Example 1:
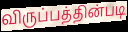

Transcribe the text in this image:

விருப்பத்தின்படி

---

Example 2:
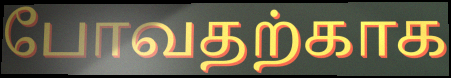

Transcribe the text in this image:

போவதற்காக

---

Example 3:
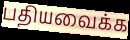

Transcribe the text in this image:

பதியவைக்க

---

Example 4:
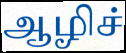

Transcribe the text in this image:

ஆழிச்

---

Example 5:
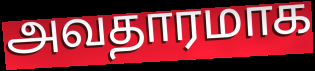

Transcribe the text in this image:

அவதாரமாக